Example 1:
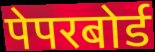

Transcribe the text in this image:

पेपरबोर्ड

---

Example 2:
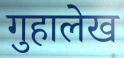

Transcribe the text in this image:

गुहालेख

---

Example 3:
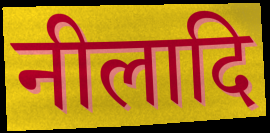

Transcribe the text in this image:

नीलादि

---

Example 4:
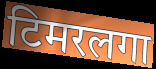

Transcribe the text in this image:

टिमरलगा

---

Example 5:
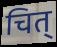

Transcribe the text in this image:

चित्